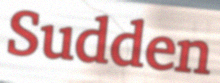
Sudden